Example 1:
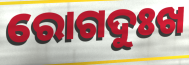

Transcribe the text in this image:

ରୋଗଦୁଃଖ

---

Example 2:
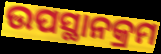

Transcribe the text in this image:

ଉପସ୍ଥାନକ୍ରମ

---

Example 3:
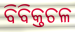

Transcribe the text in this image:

ବିବିକ୍ତଚଳ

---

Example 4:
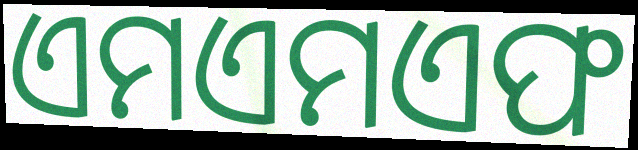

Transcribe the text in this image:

ଏମଏମଏଫ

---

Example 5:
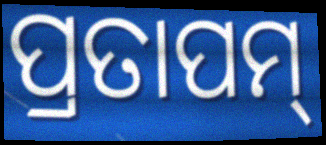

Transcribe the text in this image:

ପ୍ରତାପମ୍